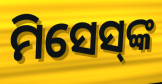
ମିସେସ୍‍ଙ୍କ